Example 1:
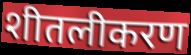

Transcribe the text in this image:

शीतलीकरण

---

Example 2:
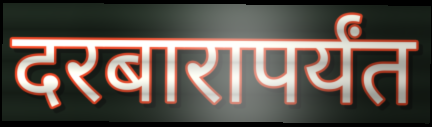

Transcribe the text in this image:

दरबारापर्यंत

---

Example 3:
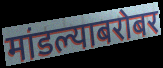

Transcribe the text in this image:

मांडल्याबरोबर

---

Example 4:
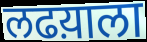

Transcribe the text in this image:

लढय़ाला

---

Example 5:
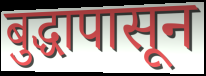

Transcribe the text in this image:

बुद्धापासून